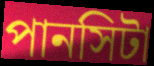
পানসিটা